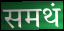
समथं